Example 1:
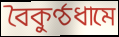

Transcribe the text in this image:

বৈকুণ্ঠধামে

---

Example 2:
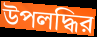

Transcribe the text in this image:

উপলদ্ধির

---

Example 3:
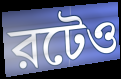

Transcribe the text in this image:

রটেও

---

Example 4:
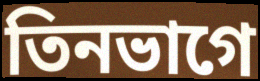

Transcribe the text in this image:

তিনভাগে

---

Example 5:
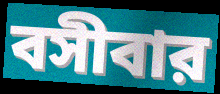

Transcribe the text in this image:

বসীবার